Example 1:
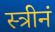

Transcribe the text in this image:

स्त्रीनं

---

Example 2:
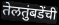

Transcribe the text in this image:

तेलतुंबडेंची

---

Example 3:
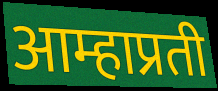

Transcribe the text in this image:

आम्हाप्रती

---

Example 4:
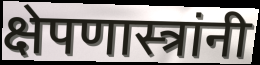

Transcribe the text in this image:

क्षेपणास्त्रांनी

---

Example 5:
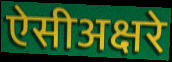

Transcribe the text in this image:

ऐसीअक्षरे